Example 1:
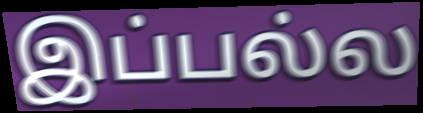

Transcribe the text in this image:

இப்பல்ல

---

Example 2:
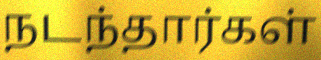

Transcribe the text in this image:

நடந்தார்கள்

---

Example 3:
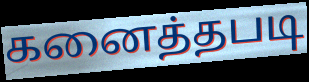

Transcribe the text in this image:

கனைத்தபடி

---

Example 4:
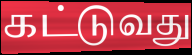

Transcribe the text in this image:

கட்டுவது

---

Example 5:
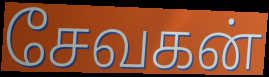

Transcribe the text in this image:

சேவகன்